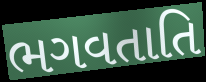
ભગવતાતિ